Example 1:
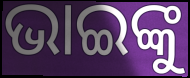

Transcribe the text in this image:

ଭାଇଙ୍କୁ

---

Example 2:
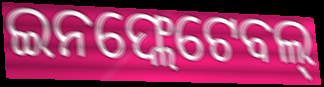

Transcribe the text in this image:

ଇନଫ୍ଲେଟେବଲ୍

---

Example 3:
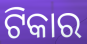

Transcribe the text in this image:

ଟିକାର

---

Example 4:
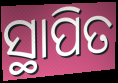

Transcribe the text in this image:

ସ୍ଥାପିତ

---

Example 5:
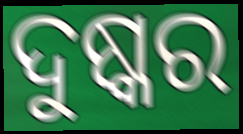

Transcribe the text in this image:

ଦୁଷ୍କର